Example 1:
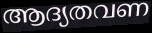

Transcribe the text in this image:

ആദ്യതവണ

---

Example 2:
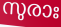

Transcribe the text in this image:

സുരാഃ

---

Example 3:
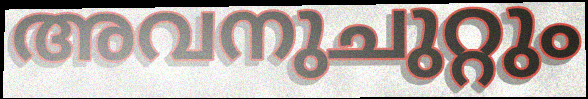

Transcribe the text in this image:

അവനുചുറ്റും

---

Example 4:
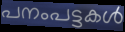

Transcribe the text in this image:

പനംപട്ടകൾ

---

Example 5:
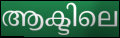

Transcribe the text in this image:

ആക്ടിലെ